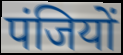
पंजियों